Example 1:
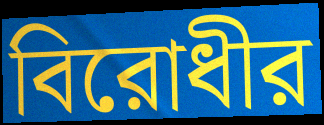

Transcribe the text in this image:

বিরোধীর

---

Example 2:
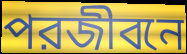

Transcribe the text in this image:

পরজীবনে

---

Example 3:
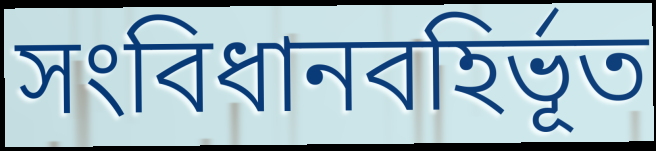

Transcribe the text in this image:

সংবিধানবহির্ভূত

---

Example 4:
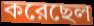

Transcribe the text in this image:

করেছেল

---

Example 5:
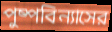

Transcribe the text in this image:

পুষ্পবিন্যাসের